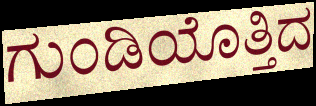
ಗುಂಡಿಯೊತ್ತಿದ